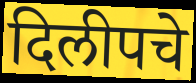
दिलीपचे